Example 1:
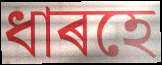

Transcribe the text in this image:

ধাৰহে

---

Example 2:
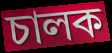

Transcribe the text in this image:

চালক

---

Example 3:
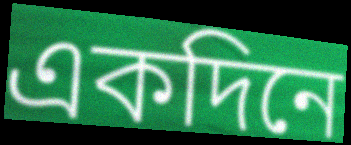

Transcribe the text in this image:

একদিনে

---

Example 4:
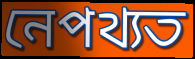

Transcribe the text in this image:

নেপথ্যত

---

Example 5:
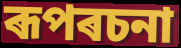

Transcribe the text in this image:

ৰূপৰচনা